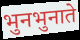
भुनभुनाते